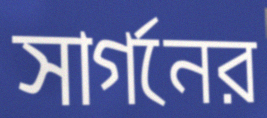
সার্গনের